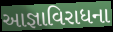
આજ્ઞાવિરાધના